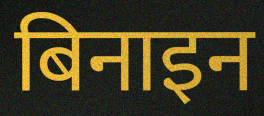
बिनाइन